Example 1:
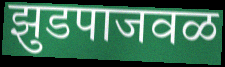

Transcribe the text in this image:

झुडपाजवळ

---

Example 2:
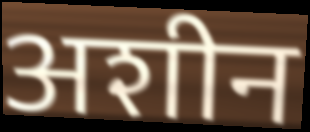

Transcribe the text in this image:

अशीन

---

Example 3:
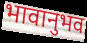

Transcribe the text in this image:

भावानुभव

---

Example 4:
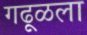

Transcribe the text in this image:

गढूळला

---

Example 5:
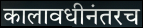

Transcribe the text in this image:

कालावधीनंतरच